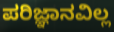
ಪರಿಜ್ಞಾನವಿಲ್ಲ